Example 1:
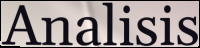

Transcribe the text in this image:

Analisis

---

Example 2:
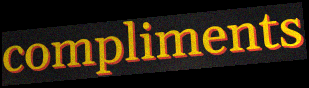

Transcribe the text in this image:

compliments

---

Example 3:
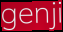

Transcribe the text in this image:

genji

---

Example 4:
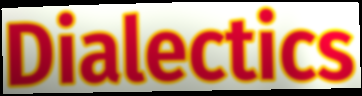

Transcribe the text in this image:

Dialectics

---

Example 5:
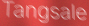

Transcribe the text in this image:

Tangsale